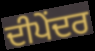
ਦੀਪੇਂਦਰ